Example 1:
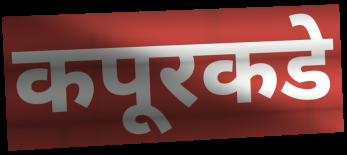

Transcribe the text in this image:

कपूरकडे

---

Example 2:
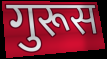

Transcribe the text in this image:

गुरूस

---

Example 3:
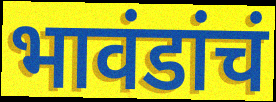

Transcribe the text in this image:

भावंडांचं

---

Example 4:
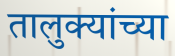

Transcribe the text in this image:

तालुक्यांच्या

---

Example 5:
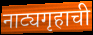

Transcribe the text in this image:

नाट्यगृहाची